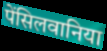
पेंसिलवानिया